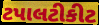
ટપાલટીકીટ